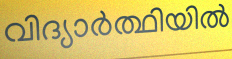
വിദ്യാർത്ഥിയിൽ